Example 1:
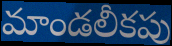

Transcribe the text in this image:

మాండలీకపు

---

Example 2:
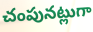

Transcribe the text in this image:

చంపునట్లుగా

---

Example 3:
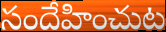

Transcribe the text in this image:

సందేహించుట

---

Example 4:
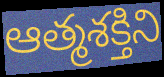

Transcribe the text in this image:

ఆత్మశక్తిని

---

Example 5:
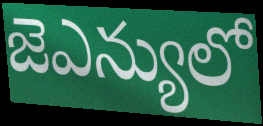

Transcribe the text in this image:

జెఎన్యులో